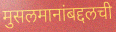
मुसलमानांबद्दलची